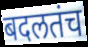
बदलतंच